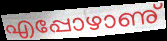
എപ്പോഴാണു്